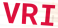
VRI